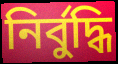
নির্বুদ্ধি